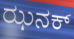
ಝನಕ್